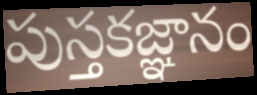
పుస్తకజ్ఞానం